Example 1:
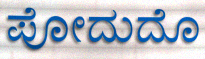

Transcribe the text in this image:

ಪೋದುದೊ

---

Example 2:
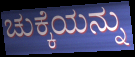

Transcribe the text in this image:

ಚುಕ್ಕೆಯನ್ನು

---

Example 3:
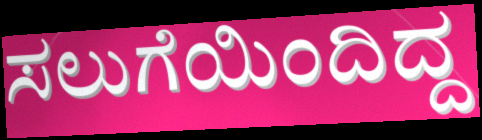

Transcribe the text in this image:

ಸಲುಗೆಯಿಂದಿದ್ದ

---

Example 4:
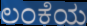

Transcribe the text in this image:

ಲಂಕೆಯ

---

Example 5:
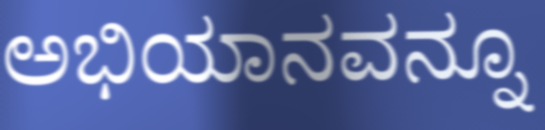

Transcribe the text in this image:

ಅಭಿಯಾನವನ್ನೂ